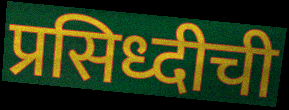
प्रसिध्दीची